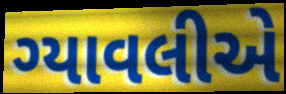
ગ્યાવલીએ